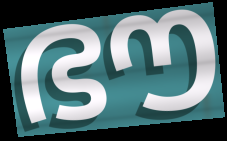
ഭൗ